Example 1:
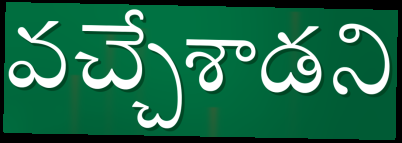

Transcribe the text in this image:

వచ్చేశాడని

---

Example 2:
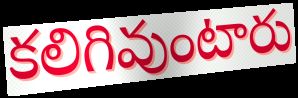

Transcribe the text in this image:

కలిగివుంటారు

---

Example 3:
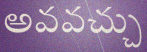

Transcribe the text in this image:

అవవచ్చు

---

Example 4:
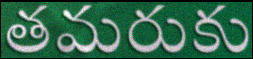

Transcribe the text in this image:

తమరుకు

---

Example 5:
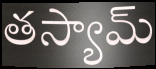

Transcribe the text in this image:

తస్యామ్